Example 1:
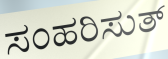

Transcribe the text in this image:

ಸಂಹರಿಸುತ್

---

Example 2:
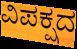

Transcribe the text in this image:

ವಿಪಕ್ಷದ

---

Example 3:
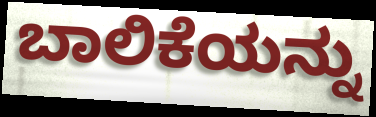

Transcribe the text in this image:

ಬಾಲಿಕೆಯನ್ನು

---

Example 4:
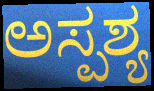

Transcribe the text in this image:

ಅಸ್ಪಶ್ಯ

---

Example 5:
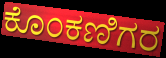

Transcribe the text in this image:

ಕೊಂಕಣಿಗರ